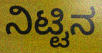
ನಿಟ್ಟಿನ